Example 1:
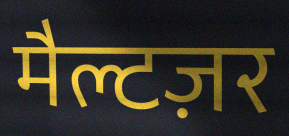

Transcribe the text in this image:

मैल्टज़र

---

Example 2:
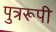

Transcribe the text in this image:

पुत्ररूपी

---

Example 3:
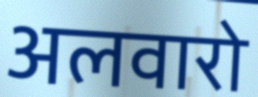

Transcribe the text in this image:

अलवारो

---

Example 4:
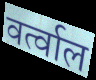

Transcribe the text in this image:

वर्त्वाल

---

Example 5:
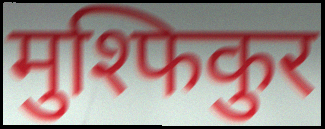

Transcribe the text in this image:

मुश्फिकुर